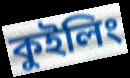
কুইলিং